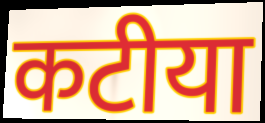
कटीया